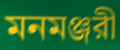
মনমঞ্জরী